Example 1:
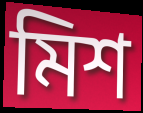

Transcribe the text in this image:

মিশ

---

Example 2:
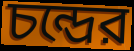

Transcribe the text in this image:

চন্দ্রের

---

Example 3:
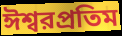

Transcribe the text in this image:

ঈশ্বরপ্রতিম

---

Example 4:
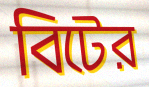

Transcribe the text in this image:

বিটের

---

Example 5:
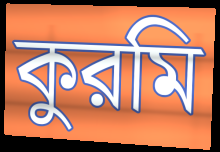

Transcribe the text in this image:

কুরমি